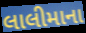
લાલીમાના